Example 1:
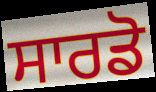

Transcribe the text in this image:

ਸਾਰਡੋ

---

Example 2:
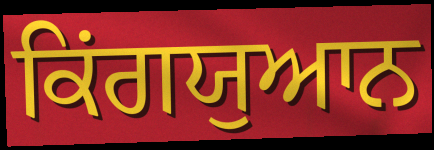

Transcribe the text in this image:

ਕਿਂਗਯੁਆਨ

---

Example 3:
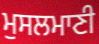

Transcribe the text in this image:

ਮੁਸਲਮਾਣੀ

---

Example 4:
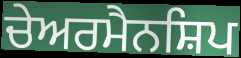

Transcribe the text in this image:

ਚੇਅਰਮੈਨਸ਼ਿਪ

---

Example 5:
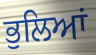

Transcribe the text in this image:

ਭੁਲਿਆਂ